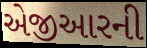
એજીઆરની